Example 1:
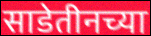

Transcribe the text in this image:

साडेतीनच्या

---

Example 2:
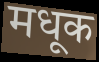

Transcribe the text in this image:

मधूक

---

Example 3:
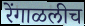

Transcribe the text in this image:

रेंगाळलीच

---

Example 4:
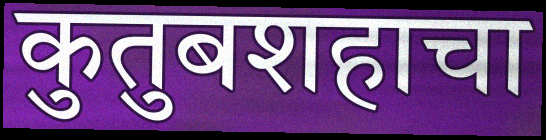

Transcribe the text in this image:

कुतुबशहाचा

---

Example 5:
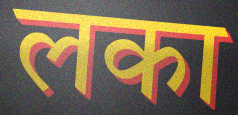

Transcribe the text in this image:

लका